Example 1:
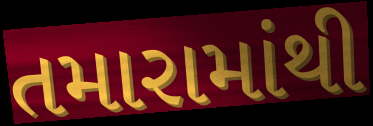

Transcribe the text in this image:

તમારામાંથી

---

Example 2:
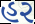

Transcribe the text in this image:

હર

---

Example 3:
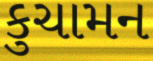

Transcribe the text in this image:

કુચામન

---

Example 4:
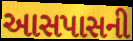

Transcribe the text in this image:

આસપાસની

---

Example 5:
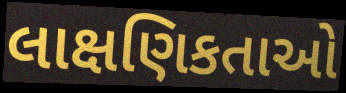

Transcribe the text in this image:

લાક્ષણિકતાઓ